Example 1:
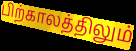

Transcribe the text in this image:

பிற்காலத்திலும்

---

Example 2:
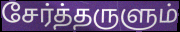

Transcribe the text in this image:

சேர்த்தருளும்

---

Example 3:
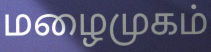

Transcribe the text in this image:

மழைமுகம்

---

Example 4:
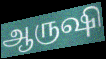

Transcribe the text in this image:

ஆருஷி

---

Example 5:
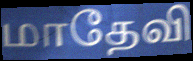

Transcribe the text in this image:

மாதேவி